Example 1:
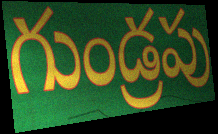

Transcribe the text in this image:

గుండ్రపు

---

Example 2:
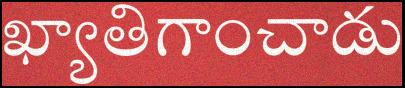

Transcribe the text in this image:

ఖ్యాతిగాంచాడు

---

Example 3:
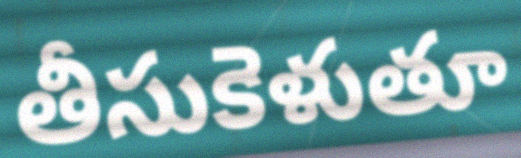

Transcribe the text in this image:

తీసుకెళుతూ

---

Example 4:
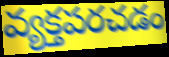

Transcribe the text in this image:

వ్యక్తపరచడం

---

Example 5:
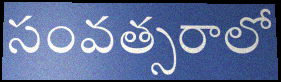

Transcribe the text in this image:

సంవత్సరాలో